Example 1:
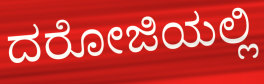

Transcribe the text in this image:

ದರೋಜಿಯಲ್ಲಿ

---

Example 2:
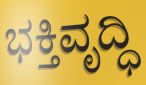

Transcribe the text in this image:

ಭಕ್ತಿವೃದ್ಧಿ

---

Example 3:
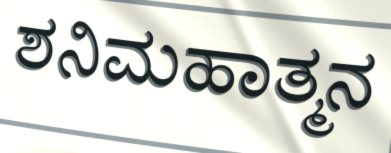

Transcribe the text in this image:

ಶನಿಮಹಾತ್ಮನ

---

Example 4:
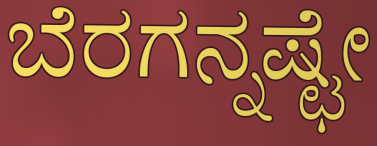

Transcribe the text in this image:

ಬೆರಗನ್ನಷ್ಟೇ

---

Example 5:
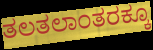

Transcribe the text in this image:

ತಲತಲಾಂತರಕ್ಕೂ